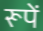
रूपें